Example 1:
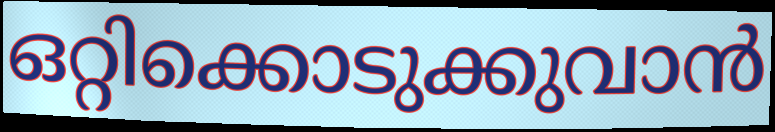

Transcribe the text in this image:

ഒറ്റിക്കൊടുക്കുവാൻ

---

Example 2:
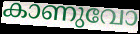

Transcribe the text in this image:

കാണുവോ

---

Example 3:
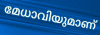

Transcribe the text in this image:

മേധാവിയുമാണ്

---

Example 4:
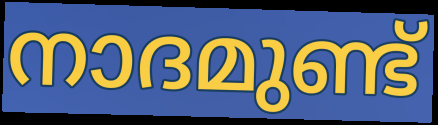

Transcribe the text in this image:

നാദമുണ്ട്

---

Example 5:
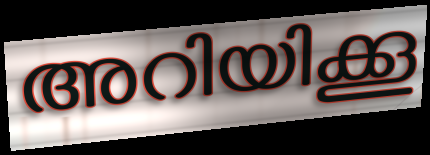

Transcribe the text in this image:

അറിയിക്കൂ